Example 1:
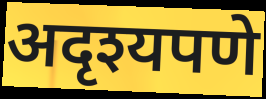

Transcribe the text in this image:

अदृश्यपणे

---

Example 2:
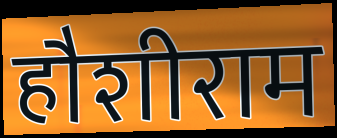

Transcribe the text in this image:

हौशीराम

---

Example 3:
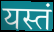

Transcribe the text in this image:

यस्तं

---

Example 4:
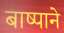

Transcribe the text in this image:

बाष्पाने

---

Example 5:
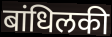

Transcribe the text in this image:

बांधिलकी